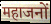
महाजनों